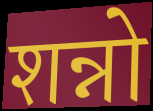
शन्नो